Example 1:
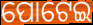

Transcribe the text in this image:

ପୋଟେଇ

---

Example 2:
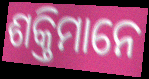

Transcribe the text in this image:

ଶକ୍ତିମାନେ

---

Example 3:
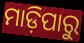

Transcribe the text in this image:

ମାଡ଼ିପାରୁ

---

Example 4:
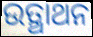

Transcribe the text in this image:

ଉତ୍ଥାଥନ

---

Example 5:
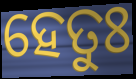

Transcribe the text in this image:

ହେତୁଃ